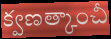
క్వణత్కాంచీ